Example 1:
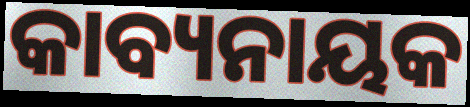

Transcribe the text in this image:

କାବ୍ୟନାୟକ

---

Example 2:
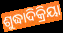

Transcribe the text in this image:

ଶୁଦ୍ଧାଦିକ୍ରିୟା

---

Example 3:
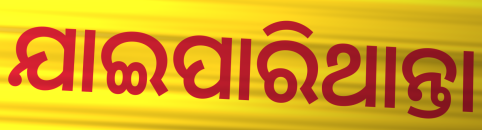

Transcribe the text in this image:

ଯାଇପାରିଥାନ୍ତା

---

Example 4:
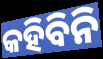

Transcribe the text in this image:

କହିବିନି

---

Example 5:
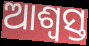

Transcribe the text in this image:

ଆଶ୍ବସ୍ତ